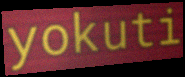
yokuti